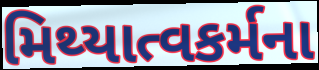
મિથ્યાત્વકર્મના